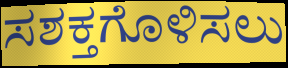
ಸಶಕ್ತಗೊಳಿಸಲು